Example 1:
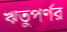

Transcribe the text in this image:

ঋতুপর্ণর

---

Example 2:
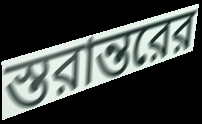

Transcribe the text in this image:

স্তরান্তরের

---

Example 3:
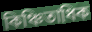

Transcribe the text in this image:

কিঞ্চিতাধিক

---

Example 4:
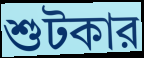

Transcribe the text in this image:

শুটকার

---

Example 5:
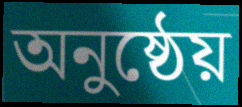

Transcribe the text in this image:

অনুষ্ঠেয়